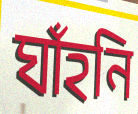
ঘাঁহনি